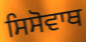
ਸਿਸੋਵਾਥ